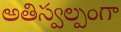
అతిస్వల్పంగా